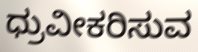
ಧ್ರುವೀಕರಿಸುವ